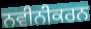
ਨਵੀਨੀਕਰਨ